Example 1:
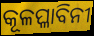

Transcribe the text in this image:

କୂଳପ୍ଳାବିନୀ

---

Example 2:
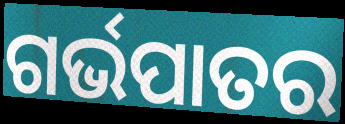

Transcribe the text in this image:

ଗର୍ଭପାତର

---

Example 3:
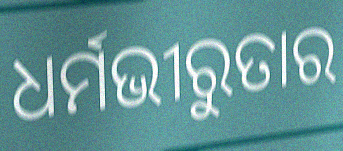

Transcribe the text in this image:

ଧର୍ମଭୀରୁତାର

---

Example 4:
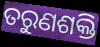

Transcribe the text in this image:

ତରୁଣଶକ୍ତି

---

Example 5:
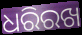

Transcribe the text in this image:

ଧରିରଖ